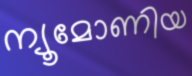
ന്യൂമോണിയ